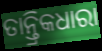
ତାନ୍ତ୍ରିକଧାରା